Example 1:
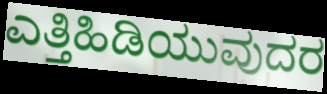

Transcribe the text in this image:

ಎತ್ತಿಹಿಡಿಯುವುದರ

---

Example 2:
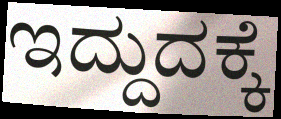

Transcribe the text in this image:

ಇದ್ದುದಕ್ಕೆ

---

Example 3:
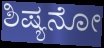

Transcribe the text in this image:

ಶಿಷ್ಯನೋ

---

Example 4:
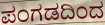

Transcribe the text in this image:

ಪಂಗಡದಿಂದ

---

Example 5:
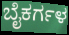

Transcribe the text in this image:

ಬೈಕರ್ಗಳ